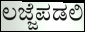
ಲಜ್ಜೆಪಡಲಿ